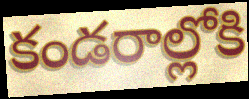
కండరాల్లోకి